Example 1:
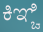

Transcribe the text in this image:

ಕಿಞ್ಚಿ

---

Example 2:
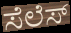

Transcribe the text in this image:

ಸೆಲೆಸ್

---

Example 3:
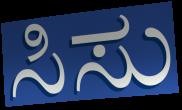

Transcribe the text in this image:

ಸಿಸು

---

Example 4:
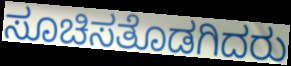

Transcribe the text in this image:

ಸೂಚಿಸತೊಡಗಿದರು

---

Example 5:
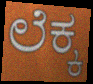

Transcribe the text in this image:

ಲೆಕ್ಕ